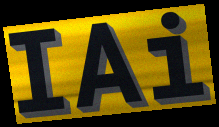
IAi